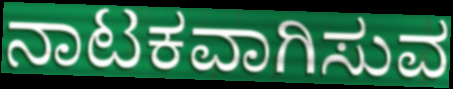
ನಾಟಕವಾಗಿಸುವ